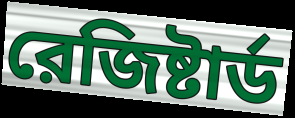
রেজিষ্টার্ড